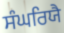
ਸੰਘਰਿਯੈ